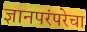
ज्ञानपरंपरेचा